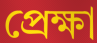
প্ৰেক্ষা